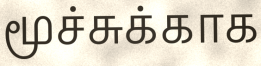
மூச்சுக்காக